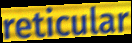
reticular